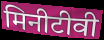
मिनीटीवी